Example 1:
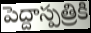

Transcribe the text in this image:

పెద్దాస్పత్రికి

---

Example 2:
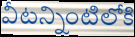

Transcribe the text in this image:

వీటన్నింటిలోకి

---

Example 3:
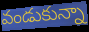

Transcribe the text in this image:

వండుకున్నా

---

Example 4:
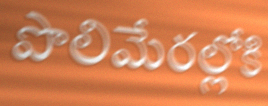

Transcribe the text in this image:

పొలిమేరల్లోకి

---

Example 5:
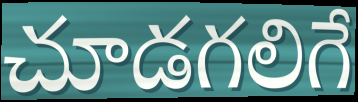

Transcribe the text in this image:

చూడగలిగే